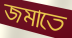
জমাতে